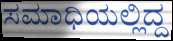
ಸಮಾಧಿಯಲ್ಲಿದ್ದ